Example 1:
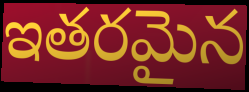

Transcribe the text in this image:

ఇతరమైన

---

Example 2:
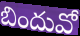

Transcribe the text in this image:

బిందువో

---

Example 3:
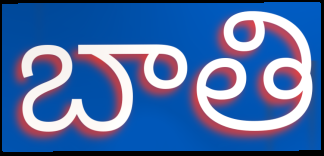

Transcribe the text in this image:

బాతి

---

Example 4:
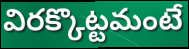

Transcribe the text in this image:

విరక్కొట్టమంటే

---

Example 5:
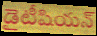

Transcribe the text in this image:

డైటీషియన్